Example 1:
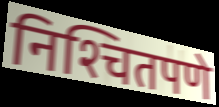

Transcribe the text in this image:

निश्चितपणे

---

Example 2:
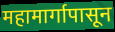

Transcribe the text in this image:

महामार्गापासून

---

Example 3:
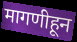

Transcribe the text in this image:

मागणीहून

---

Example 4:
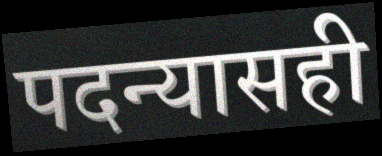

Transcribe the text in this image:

पदन्यासही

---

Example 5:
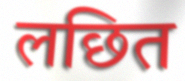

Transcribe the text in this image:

लछित